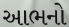
આભનો